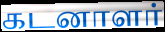
கடனாளர்